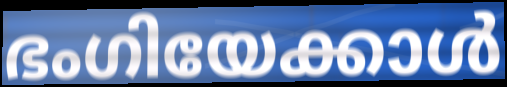
ഭംഗിയേക്കാൾ